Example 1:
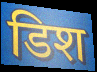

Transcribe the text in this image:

डिश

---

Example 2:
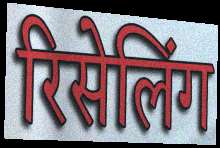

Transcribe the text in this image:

रिसेलिंग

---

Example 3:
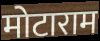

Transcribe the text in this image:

मोटाराम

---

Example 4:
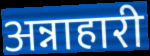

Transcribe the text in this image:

अन्नाहारी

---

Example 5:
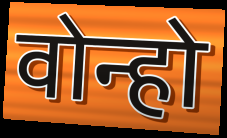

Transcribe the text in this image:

वोन्हो